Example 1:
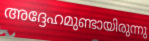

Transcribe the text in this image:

അദ്ദേഹമുണ്ടായിരുന്നു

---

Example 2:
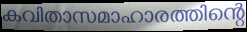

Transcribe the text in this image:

കവിതാസമാഹാരത്തിന്റെ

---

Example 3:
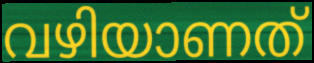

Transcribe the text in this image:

വഴിയാണത്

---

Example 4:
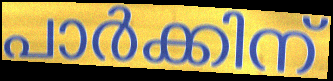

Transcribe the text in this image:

പാർക്കിന്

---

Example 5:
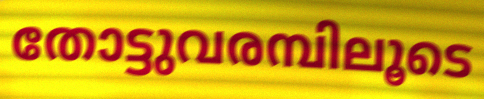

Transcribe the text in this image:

തോട്ടുവരമ്പിലൂടെ